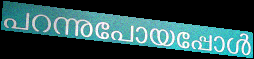
പറന്നുപോയപ്പോൾ